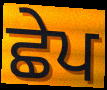
ਛੇਪ